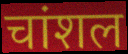
चांशल